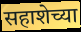
सहाशेच्या